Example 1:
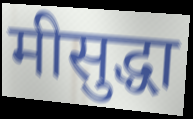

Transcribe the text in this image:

मीसुद्धा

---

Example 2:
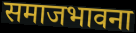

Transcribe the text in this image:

समाजभावना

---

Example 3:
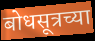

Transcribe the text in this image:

बोधसूत्रच्या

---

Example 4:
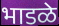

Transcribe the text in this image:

भाडळे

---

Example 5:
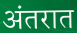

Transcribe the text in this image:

अंतरात